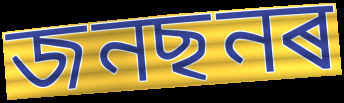
জনছনৰ